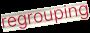
regrouping